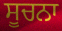
ਸੂਚਨਾ